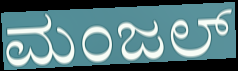
ಮಂಜಲ್